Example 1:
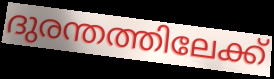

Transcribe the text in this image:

ദുരന്തത്തിലേക്ക്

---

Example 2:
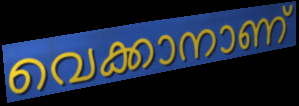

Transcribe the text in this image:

വെക്കാനാണ്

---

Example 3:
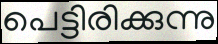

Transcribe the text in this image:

പെട്ടിരിക്കുന്നു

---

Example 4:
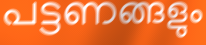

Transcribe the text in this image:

പട്ടണങ്ങളും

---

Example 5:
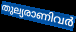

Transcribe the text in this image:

തുല്യരാണിവർ